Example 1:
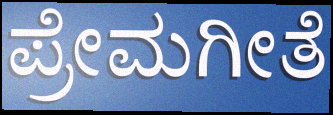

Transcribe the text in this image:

ಪ್ರೇಮಗೀತೆ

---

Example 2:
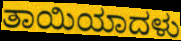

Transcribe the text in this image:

ತಾಯಿಯಾದಳು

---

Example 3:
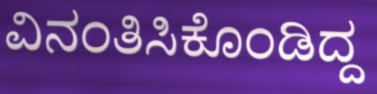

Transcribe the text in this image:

ವಿನಂತಿಸಿಕೊಂಡಿದ್ದ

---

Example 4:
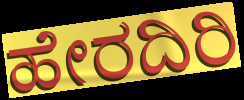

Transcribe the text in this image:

ಹೇರದಿರಿ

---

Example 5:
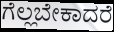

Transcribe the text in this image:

ಗೆಲ್ಲಬೇಕಾದರೆ